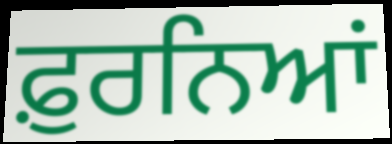
ਫ਼ੁਰਨਿਆਂ